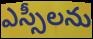
ఎస్సీలను